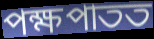
পক্ষপাতত